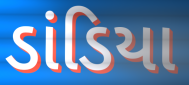
ડાંડિયા